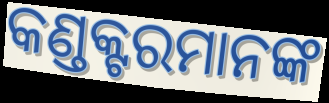
କଣ୍ଡକ୍ଟରମାନଙ୍କ